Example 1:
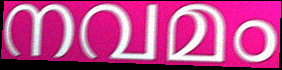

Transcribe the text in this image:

നവമം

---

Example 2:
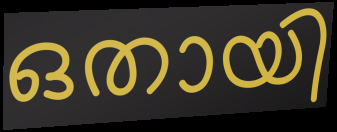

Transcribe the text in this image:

ഒതായി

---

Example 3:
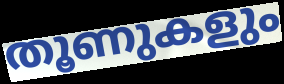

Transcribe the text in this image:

തൂണുകളും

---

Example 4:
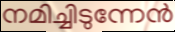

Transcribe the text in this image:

നമിച്ചിടുന്നേൻ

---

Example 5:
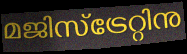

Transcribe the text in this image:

മജിസ്ട്രേറ്റിനു